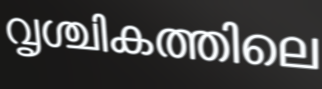
വൃശ്ചികത്തിലെ